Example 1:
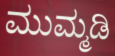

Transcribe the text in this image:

ಮುಮ್ಮಡಿ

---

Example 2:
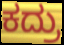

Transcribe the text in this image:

ಕದ್ರು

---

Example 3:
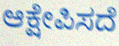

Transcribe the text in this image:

ಆಕ್ಷೇಪಿಸದೆ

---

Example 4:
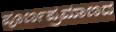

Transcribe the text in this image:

ಪೂರ್ಣಪ್ರಮಾಣದ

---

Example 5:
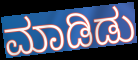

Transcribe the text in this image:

ಮಾಡಿಡು